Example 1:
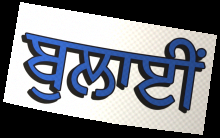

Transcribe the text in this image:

ਬੁਲਾਈਂ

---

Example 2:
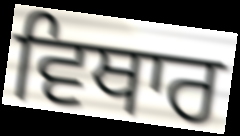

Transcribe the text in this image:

ਵਿਥਾਰ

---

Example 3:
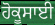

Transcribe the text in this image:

ਹੋਕੂਸਾਈ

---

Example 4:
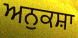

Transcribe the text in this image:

ਅਨੁਕਸ਼ਾ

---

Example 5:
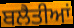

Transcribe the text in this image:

ਬਲੈਤੀਆਂ